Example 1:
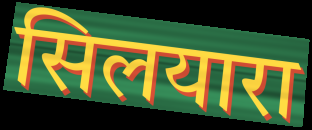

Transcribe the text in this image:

सिलयारा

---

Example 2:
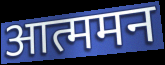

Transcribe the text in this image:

आत्ममन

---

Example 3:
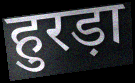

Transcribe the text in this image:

हुरड़ा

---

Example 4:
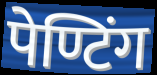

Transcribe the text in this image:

पेण्टिंग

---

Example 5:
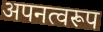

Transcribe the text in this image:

अपनत्वरूप